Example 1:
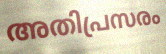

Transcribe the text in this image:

അതിപ്രസരം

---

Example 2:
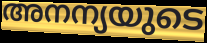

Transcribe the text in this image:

അനന്യയുടെ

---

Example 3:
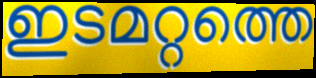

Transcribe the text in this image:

ഇടമറ്റത്തെ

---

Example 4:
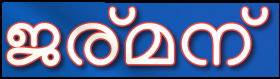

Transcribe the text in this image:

ജര്മന്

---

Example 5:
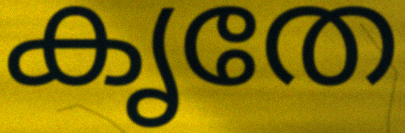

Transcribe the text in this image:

കൃതേ